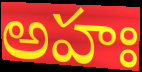
అహః